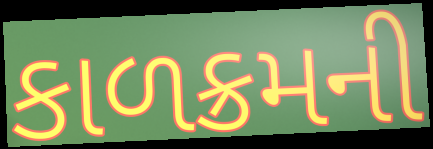
કાળક્રમની